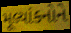
મૂલ્યાંકનોને